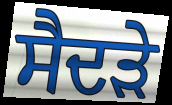
ਸੈਦੜੇ